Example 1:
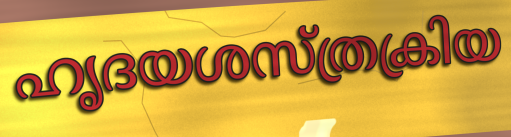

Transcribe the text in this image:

ഹൃദയശസ്ത്രക്രിയ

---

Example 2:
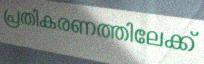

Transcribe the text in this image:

പ്രതികരണത്തിലേക്ക്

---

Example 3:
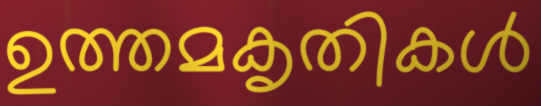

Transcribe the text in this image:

ഉത്തമകൃതികൾ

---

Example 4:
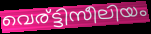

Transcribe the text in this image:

വെര്ട്ടിസീലിയം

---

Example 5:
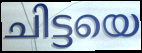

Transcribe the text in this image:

ചിട്ടയെ